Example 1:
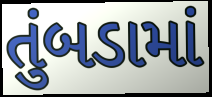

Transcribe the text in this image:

તુંબડામાં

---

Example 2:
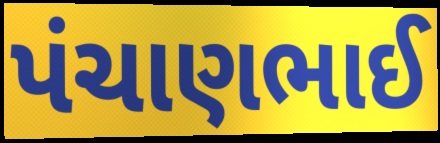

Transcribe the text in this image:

પંચાણભાઈ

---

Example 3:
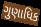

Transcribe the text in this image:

ગુણાધિક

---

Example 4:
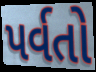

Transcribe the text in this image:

પર્વતો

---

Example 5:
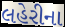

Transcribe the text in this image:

લહેરીના